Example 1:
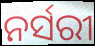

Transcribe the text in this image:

ନର୍ସରୀ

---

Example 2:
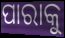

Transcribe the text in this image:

ପାରାକୁ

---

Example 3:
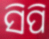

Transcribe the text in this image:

ସିପି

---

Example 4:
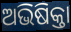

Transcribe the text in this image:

ଅଭିଷିକ୍ତା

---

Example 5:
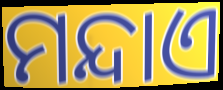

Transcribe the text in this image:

ମନ୍ଦାଏ